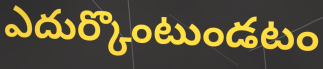
ఎదుర్కొంటుండటం